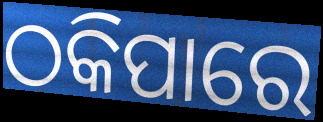
ଠକିପାରେ